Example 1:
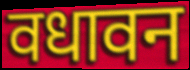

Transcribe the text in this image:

वधावन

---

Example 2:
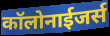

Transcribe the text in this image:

कॉलोनाईजर्स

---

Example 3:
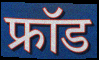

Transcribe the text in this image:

फ्रॉड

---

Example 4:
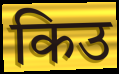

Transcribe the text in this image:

किउ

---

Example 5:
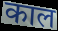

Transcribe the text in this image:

काल